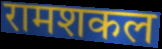
रामशकल